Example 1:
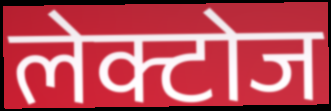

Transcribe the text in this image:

लेक्टोज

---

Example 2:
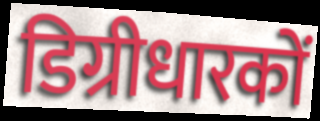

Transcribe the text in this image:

डिग्रीधारकों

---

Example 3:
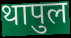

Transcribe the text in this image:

थापुल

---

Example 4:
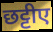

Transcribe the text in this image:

छट्टीए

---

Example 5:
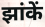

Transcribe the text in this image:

झांकें